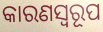
କାରଣସ୍ୱରୂପ